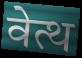
वेत्थ